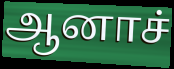
ஆனாச்